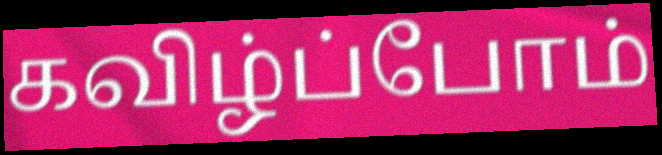
கவிழ்ப்போம்